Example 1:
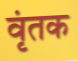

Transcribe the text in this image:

वृंतक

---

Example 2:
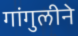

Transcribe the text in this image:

गांगुलीने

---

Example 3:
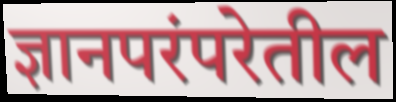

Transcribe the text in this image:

ज्ञानपरंपरेतील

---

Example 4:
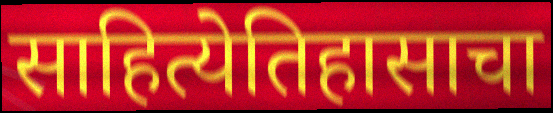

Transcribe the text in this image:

साहित्येतिहासाचा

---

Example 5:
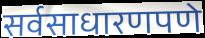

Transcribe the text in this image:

सर्वसाधारणपणे